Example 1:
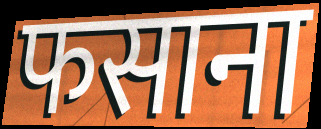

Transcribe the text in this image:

फसाना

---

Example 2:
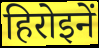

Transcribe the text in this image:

हिरोइनें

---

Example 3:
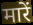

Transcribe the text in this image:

मारें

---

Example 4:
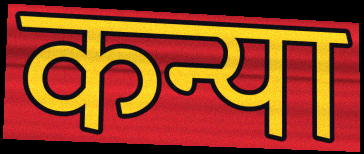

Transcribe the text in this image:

कन्या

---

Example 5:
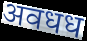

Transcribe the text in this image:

अवधध